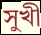
সুখী